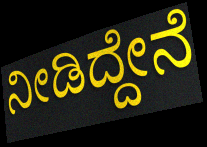
ನೀಡಿದ್ದೇನೆ